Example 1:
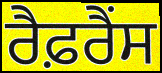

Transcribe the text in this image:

ਰੈਫ਼ਰੈਂਸ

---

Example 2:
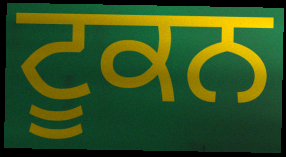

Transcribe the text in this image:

ਟੂਕਨ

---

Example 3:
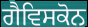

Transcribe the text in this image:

ਗੈਵਿਸਕੋਨ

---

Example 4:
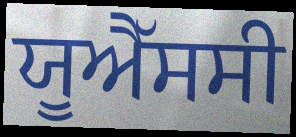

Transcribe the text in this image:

ਯੂਐੱਸਸੀ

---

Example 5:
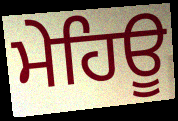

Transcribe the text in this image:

ਮੇਹਿਊ